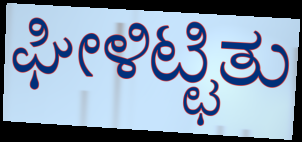
ಘೀಳಿಟ್ಟಿತು